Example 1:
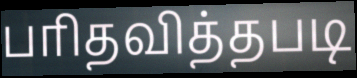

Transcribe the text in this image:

பரிதவித்தபடி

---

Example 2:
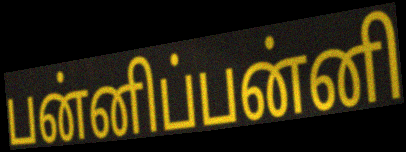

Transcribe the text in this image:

பன்னிப்பன்னி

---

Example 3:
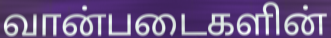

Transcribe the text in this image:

வான்படைகளின்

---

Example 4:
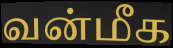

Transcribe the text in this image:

வன்மீக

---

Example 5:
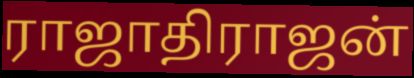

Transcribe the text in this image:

ராஜாதிராஜன்